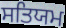
ਸਤਿਯਮ